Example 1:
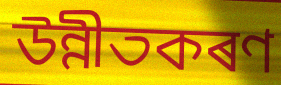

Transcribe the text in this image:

উন্নীতকৰণ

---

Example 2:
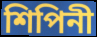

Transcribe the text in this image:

শিপিনী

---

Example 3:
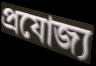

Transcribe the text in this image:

প্ৰযোজ্য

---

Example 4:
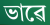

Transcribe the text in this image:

ভাৱে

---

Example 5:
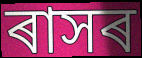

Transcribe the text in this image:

ৰাসৰ